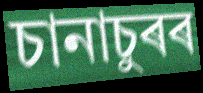
চানাচুৰৰ